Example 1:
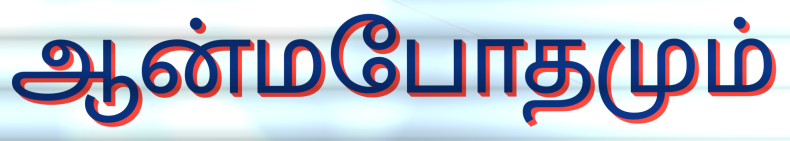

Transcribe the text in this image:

ஆன்மபோதமும்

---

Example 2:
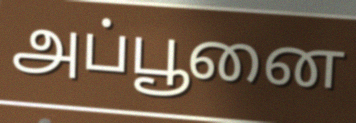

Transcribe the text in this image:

அப்பூனை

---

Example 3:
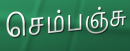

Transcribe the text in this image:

செம்பஞ்சு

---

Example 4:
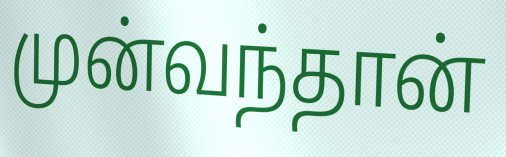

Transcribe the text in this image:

முன்வந்தான்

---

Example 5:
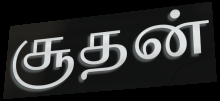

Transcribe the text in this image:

சூதன்